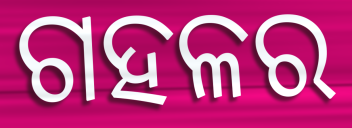
ଗହଳର